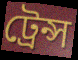
ট্রেন্স